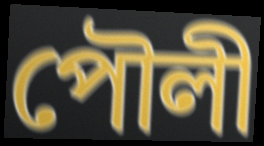
পৌলী